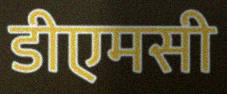
डीएमसी